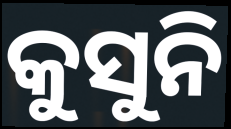
କୁସୁନି